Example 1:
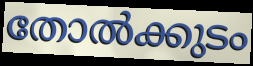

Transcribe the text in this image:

തോൽക്കുടം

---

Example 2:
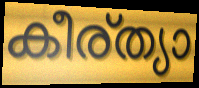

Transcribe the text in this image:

കീര്ത്യാ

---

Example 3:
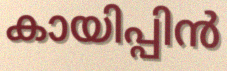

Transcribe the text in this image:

കായിപ്പിൻ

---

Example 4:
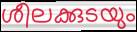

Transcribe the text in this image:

ശീലക്കുടയും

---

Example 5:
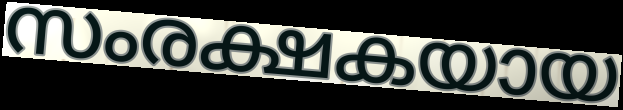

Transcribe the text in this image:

സംരക്ഷകയായ